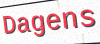
Dagens